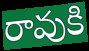
రావుకి